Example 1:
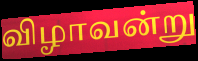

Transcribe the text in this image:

விழாவன்று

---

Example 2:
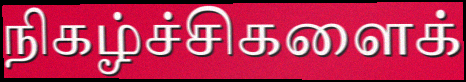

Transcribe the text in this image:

நிகழ்ச்சிகளைக்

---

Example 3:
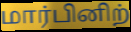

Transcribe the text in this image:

மார்பினிற்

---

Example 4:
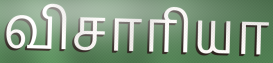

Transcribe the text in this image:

விசாரியா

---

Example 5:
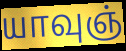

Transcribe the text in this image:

யாவுஞ்